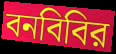
বনবিবির